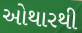
ઓથારથી